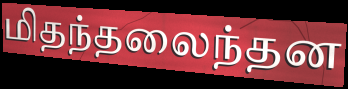
மிதந்தலைந்தன